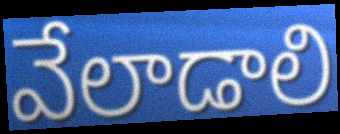
వేలాడాలి